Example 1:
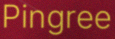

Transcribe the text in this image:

Pingree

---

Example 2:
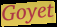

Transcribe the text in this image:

Goyet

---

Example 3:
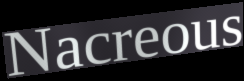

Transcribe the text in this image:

Nacreous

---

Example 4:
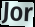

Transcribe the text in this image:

Jor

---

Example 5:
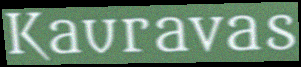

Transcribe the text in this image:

Kauravas